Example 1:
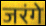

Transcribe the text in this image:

जरंगे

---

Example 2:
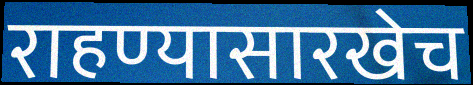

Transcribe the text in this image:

राहण्यासारखेच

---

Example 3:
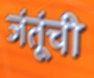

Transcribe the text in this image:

जंतूंची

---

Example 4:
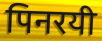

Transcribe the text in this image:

पिनरयी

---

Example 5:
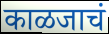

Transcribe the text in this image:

काळजाचं